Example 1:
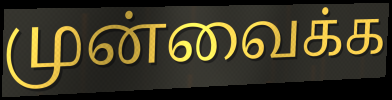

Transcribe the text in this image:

முன்வைக்க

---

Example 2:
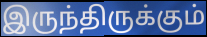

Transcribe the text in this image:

இருந்திருக்கும்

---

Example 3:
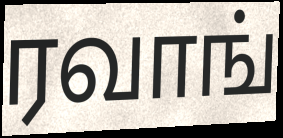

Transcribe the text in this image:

ரவாங்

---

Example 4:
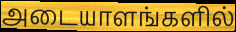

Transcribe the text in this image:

அடையாளங்களில்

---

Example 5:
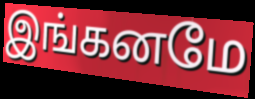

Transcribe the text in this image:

இங்கனமே